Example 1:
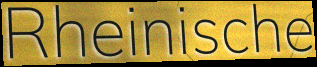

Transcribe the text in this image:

Rheinische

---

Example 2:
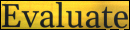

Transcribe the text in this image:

Evaluate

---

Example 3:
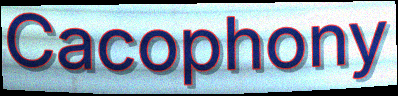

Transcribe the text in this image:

Cacophony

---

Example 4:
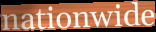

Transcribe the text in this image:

nationwide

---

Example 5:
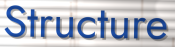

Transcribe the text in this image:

Structure